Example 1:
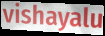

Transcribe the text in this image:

vishayalu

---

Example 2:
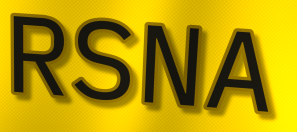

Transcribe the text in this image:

RSNA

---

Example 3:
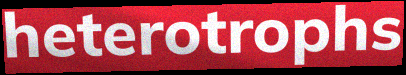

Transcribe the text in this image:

heterotrophs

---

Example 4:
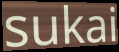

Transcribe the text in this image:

sukai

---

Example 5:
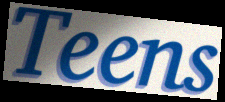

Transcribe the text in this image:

Teens